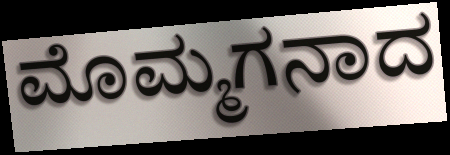
ಮೊಮ್ಮಗನಾದ